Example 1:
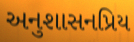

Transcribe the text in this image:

અનુશાસનપ્રિય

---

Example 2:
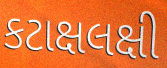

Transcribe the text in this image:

કટાક્ષલક્ષી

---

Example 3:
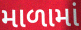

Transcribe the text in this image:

માળામાં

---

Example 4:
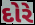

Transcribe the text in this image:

દોરે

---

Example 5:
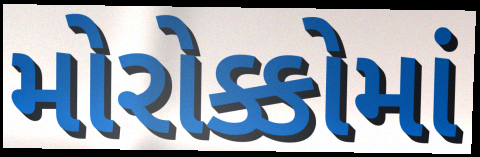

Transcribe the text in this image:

મોરોક્કોમાં